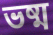
ভষ্ম